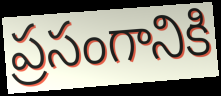
ప్రసంగానికి